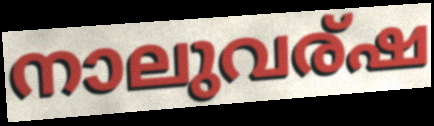
നാലുവര്ഷ